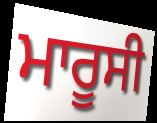
ਮਾਰੂਸੀ